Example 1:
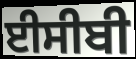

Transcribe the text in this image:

ਈਸੀਬੀ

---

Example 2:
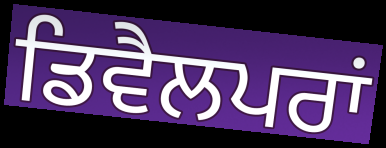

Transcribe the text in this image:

ਡਿਵੈਲਪਰਾਂ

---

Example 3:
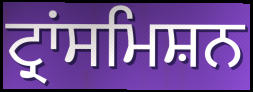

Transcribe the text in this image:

ਟ੍ਰਾਂਸਮਿਸ਼ਨ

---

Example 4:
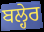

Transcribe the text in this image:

ਬਲ੍ਹੇਰ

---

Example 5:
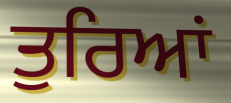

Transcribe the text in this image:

ਤੁਰਿਆਂ